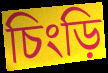
চিংড়ি